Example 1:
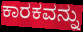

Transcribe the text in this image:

ಕಾರಕವನ್ನು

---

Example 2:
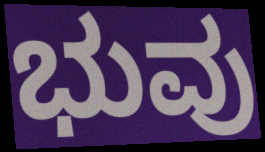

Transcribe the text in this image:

ಭುವು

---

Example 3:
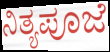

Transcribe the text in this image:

ನಿತ್ಯಪೂಜೆ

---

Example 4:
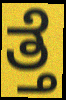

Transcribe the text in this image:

ತ್ತೆ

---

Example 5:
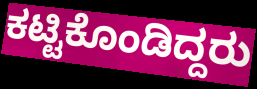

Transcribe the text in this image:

ಕಟ್ಟಿಕೊಂಡಿದ್ದರು